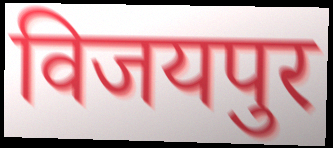
विजयपुर